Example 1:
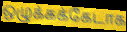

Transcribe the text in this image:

ஒழுக்கக்கேடாக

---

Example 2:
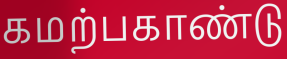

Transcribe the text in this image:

கமற்பகாண்டு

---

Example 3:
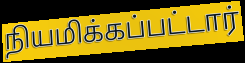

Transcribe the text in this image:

நியமிக்கப்பட்டார்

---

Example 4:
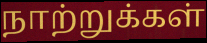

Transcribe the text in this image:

நாற்றுக்கள்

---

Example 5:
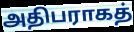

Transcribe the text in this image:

அதிபராகத்